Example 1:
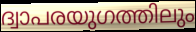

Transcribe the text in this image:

ദ്വാപരയുഗത്തിലും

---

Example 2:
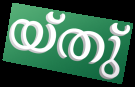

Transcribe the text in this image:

യ്തു്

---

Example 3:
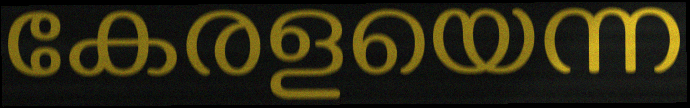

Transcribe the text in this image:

കേരളയെന്ന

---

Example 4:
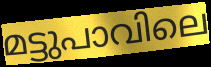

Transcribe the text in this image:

മട്ടുപാവിലെ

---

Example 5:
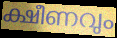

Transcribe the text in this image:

ക്ഷീണവും